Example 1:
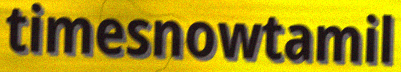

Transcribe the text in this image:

timesnowtamil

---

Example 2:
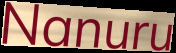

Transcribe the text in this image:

Nanuru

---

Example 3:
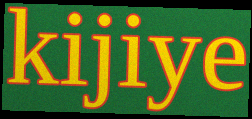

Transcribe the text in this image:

kijiye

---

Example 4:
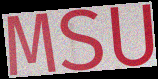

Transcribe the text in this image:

MSU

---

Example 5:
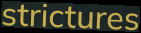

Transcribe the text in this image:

strictures